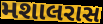
મશાલરાસ